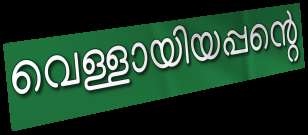
വെള്ളായിയപ്പന്റെ